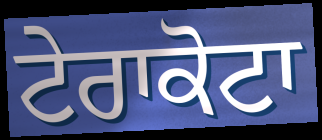
ਟੇਰਾਕੋਟਾ